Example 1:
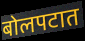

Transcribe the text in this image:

बोलपटात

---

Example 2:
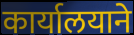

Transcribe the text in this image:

कार्यालयाने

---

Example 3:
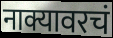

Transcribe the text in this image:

नाक्यावरचं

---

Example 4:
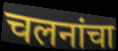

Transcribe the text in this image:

चलनांचा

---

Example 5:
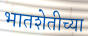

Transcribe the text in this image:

भातशेतीच्या